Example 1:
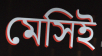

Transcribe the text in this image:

মেসিই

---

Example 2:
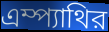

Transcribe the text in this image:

এম্প্যাথির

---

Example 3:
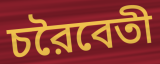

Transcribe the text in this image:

চরৈবেতী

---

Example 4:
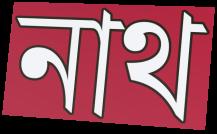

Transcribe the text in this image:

নাথ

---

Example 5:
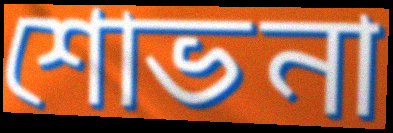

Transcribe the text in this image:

শোভনা